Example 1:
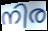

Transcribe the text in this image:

നിര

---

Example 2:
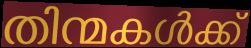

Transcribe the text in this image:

തിന്മകൾക്ക്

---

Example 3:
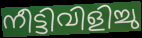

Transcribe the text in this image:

നീട്ടിവിളിച്ചു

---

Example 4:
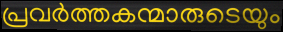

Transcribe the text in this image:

പ്രവർത്തകന്മാരുടെയും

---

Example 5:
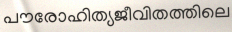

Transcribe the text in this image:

പൗരോഹിത്യജീവിതത്തിലെ